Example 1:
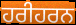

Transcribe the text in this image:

ਹਰੀਹਰਨ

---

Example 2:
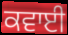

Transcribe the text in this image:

ਕਵਾਈ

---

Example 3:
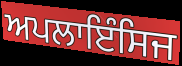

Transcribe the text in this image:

ਅਪਲਾਇੰਸਿਜ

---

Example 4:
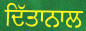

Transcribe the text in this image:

ਦਿੱਤਾਨਾਲ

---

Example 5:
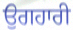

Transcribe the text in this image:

ਉਗਹਾਰੀ